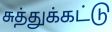
சுத்துக்கட்டு